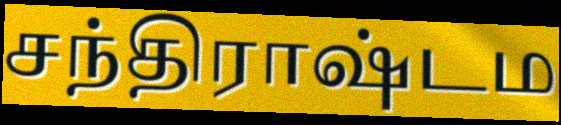
சந்திராஷ்டம